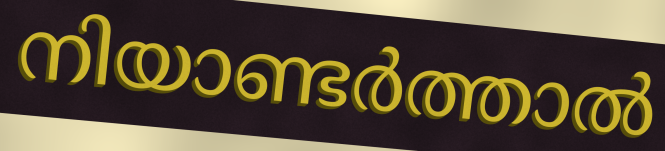
നിയാണ്ടർത്താൽ